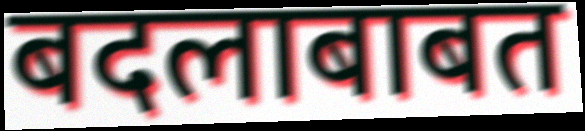
बदलाबाबत